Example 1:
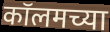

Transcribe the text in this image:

कॉलमच्या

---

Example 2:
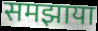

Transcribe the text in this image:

समझाया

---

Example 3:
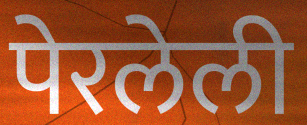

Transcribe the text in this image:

पेरलेली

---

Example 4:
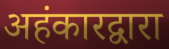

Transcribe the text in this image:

अहंकारद्वारा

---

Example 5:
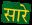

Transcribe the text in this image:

सारे